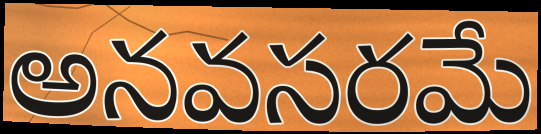
అనవసరమే